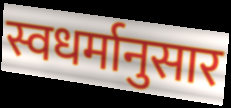
स्वधर्मानुसार